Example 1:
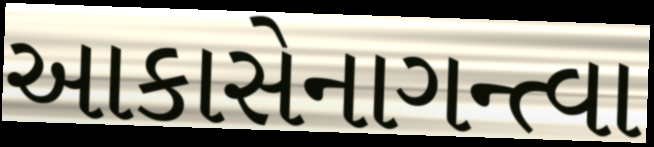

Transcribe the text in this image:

આકાસેનાગન્ત્વા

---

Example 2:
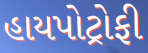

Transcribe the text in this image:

હાયપોટ્રોફી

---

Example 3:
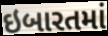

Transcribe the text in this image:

ઇબારતમાં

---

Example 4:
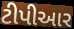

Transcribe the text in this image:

ટીપીઆર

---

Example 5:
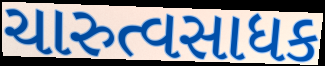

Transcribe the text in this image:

ચારુત્વસાધક